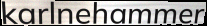
karlnehammer